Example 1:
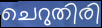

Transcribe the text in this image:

ചെറുതിരി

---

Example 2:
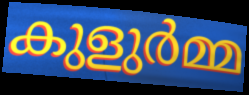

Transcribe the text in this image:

കുളുർമ്മ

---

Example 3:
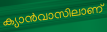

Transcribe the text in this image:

ക്യാൻവാസിലാണ്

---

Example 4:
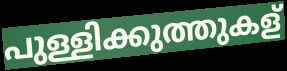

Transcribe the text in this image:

പുള്ളിക്കുത്തുകള്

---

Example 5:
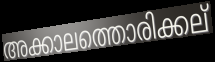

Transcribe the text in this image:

അക്കാലത്തൊരിക്കല്